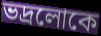
ভদ্ৰলোকে